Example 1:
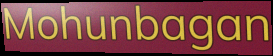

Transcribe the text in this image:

Mohunbagan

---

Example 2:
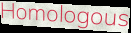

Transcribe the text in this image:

Homologous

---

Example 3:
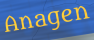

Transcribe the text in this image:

Anagen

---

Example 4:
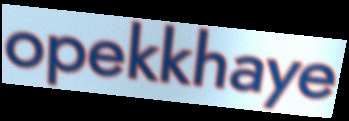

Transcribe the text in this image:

opekkhaye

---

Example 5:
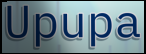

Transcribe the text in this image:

Upupa